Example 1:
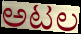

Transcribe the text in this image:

ಅಟಲ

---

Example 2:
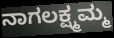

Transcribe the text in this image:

ನಾಗಲಕ್ಷ್ಮಮ್ಮ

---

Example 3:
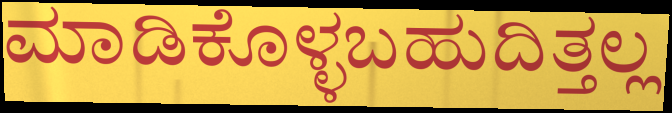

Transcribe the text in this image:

ಮಾಡಿಕೊಳ್ಳಬಹುದಿತ್ತಲ್ಲ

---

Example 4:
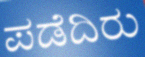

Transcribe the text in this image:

ಪಡೆದಿರು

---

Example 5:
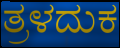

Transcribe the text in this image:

ತ್ರಳದುಕ